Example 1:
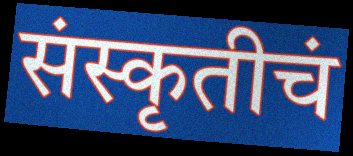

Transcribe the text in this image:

संस्कृतीचं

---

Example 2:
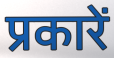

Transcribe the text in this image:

प्रकारें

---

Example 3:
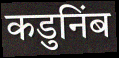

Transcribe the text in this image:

कडुनिंब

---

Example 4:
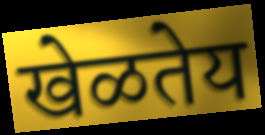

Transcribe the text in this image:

खेळतेय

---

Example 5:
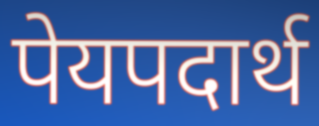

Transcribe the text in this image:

पेयपदार्थ